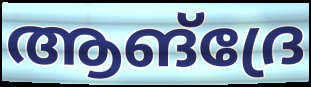
ആങ്ദ്രേ